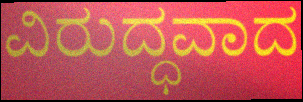
ವಿರುದ್ಧವಾದ